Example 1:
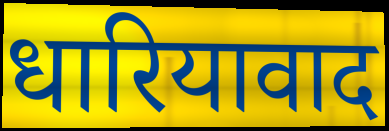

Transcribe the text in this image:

धारियावाद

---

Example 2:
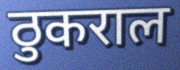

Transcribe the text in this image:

ठुकराल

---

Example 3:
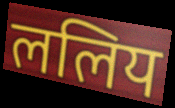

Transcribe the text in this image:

ललिय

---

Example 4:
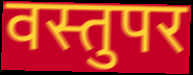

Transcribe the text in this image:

वस्तुपर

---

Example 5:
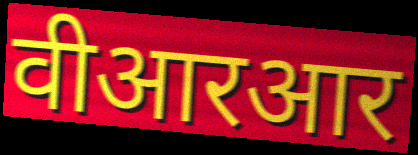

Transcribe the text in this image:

वीआरआर